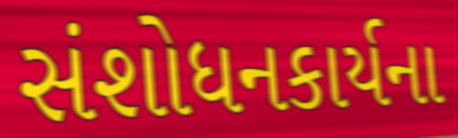
સંશોધનકાર્યના